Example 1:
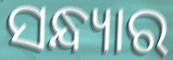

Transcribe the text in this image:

ସନ୍ଧ୍ୟାର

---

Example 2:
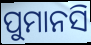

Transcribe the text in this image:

ପୁମାନସି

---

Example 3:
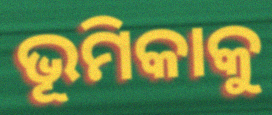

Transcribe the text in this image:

ଭୂମିକାକୁ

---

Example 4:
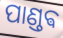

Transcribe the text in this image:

ପାଣ୍ଡଵ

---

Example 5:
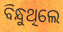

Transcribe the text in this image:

ବିନ୍ଧୁଥିଲେ